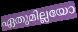
ഏതുമില്ലയോ